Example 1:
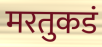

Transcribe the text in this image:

मरतुकडं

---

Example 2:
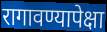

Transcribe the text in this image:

रागावण्यापेक्षा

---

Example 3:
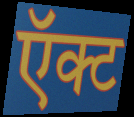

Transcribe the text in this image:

ऍक्ट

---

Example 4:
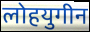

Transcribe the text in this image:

लोहयुगीन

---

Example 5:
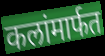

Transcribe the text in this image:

कलांमार्फत